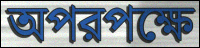
অপরপক্ষে